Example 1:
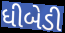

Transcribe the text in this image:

ધીબેડી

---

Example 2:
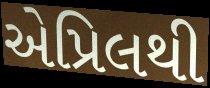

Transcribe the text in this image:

એપ્રિલથી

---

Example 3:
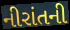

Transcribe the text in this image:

નીરાંતની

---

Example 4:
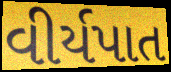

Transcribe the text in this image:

વીર્યપાત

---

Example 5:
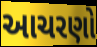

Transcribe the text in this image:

આચરણો